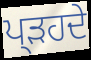
ਪ੍ੜਹਦੇ